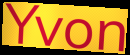
Yvon